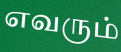
எவரும்